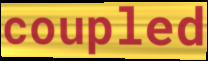
coupled